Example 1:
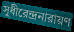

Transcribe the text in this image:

সুধীরেন্দ্রনারায়ণ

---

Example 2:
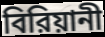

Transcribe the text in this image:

বিরিয়ানী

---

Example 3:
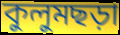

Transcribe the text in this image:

কুলুমছড়া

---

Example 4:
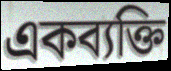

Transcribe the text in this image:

একব্যক্তি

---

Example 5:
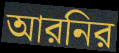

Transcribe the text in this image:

আরনির